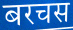
बरचस